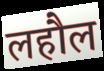
लहौल